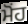
ਮੋਂਹ